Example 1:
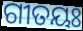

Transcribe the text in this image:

ଗୀତୟଃ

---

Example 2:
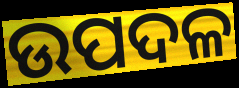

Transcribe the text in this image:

ଉପଦଳ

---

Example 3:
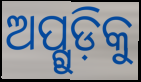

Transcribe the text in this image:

ଅପ୍ଗୁଡ଼ିକୁ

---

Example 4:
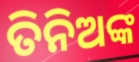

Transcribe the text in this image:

ତିନିଅଙ୍କ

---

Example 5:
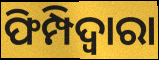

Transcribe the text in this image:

ଫିମ୍ପିଦ୍ଵାରା